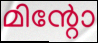
മിന്റോ